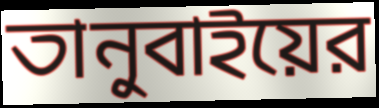
তানুবাইয়ের